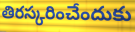
తిరస్కరించేందుకు